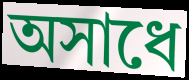
অসাধে